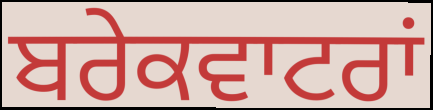
ਬਰੇਕਵਾਟਰਾਂ